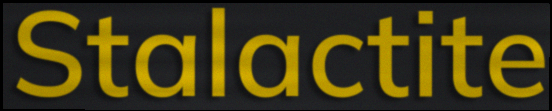
Stalactite